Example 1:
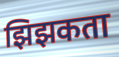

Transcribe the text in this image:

झिझकता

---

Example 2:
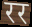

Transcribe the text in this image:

रर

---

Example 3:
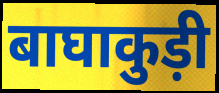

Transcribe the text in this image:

बाघाकुड़ी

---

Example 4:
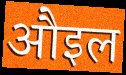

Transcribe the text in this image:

औइल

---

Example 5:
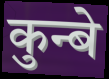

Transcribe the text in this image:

कुन्बे